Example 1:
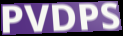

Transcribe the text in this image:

PVDPS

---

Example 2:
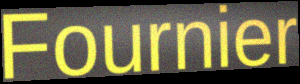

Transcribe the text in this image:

Fournier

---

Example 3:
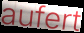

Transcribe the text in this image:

aufert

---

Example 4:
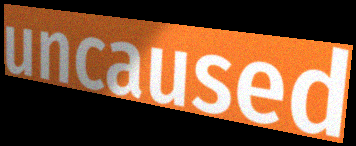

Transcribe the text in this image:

uncaused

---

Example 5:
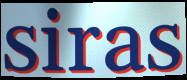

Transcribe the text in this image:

siras